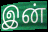
இன்